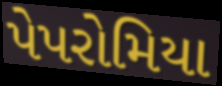
પેપરોમિયા